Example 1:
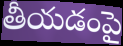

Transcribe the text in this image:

తీయడంపై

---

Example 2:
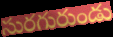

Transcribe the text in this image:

సురగురుండు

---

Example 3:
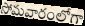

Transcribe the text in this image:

సోమవారంలోగా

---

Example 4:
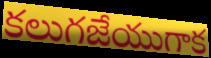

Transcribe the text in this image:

కలుగజేయుగాక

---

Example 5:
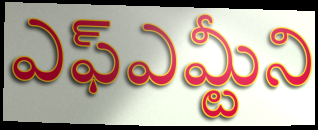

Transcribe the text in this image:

ఎఫ్ఎమ్టీని